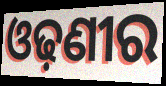
ଓଢ଼ଣୀର